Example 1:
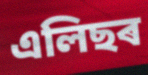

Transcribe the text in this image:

এলিছৰ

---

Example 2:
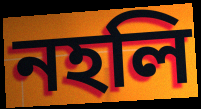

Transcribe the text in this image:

নহলি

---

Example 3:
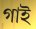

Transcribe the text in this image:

গাই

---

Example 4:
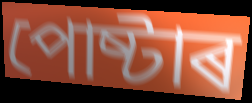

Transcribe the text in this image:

পোষ্টাৰ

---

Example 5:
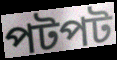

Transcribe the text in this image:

পটপট